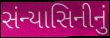
સંન્યાસિનીનું